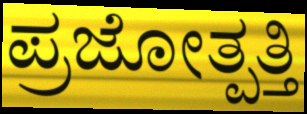
ಪ್ರಜೋತ್ಪತ್ತಿ